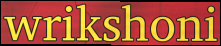
wrikshoni